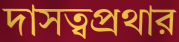
দাসত্বপ্রথার